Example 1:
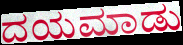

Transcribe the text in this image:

ದಯಮಾಡು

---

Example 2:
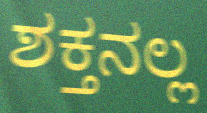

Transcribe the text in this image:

ಶಕ್ತನಲ್ಲ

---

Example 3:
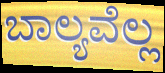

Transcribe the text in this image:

ಬಾಲ್ಯವೆಲ್ಲ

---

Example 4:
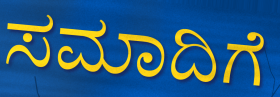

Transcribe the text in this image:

ಸಮಾದಿಗೆ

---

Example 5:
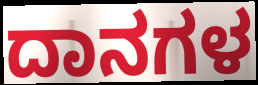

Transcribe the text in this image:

ದಾನಗಳ